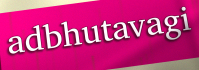
adbhutavagi